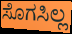
ಸೊಗಸಿಲ್ಲ